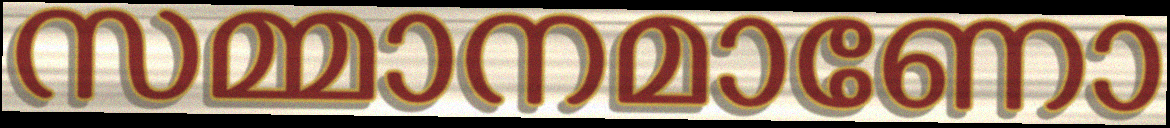
സമ്മാനമാണോ